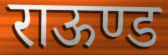
राऊण्ड